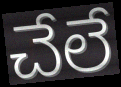
చేలే